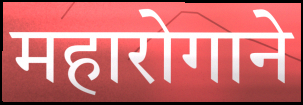
महारोगाने